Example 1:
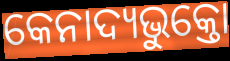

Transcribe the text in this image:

କେନାଦ୍ୟଭୁକ୍ତୋ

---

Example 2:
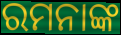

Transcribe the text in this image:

ରମନାଙ୍କ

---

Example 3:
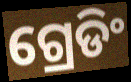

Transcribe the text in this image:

ଗ୍ରେଡିଂ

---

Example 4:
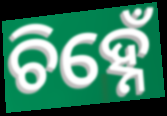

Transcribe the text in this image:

ଚିହ୍ନେଁ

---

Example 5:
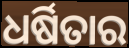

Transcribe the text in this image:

ଧର୍ଷିତାର